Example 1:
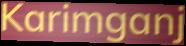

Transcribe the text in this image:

Karimganj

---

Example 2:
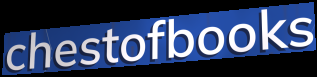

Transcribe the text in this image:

chestofbooks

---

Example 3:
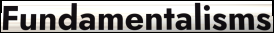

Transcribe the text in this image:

Fundamentalisms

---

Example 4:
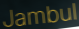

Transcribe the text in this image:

Jambul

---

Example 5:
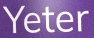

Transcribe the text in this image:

Yeter